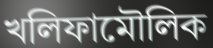
খলিফামৌলিক